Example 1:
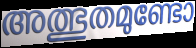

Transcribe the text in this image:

അത്ഭുതമുണ്ടോ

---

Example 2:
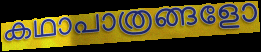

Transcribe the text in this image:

കഥാപാത്രങ്ങളോ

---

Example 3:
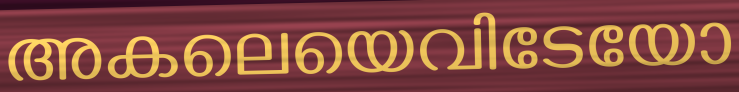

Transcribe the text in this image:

അകലെയെവിടേയോ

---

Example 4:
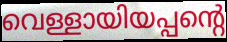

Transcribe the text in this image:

വെള്ളായിയപ്പന്റെ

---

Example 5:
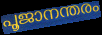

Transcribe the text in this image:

പൂജാനന്തരം